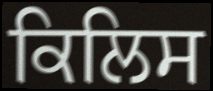
ਕਿਲਿਸ